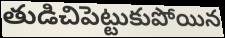
తుడిచిపెట్టుకుపోయిన